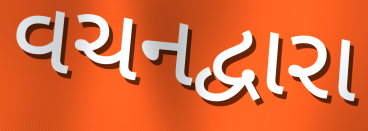
વચનદ્વારા